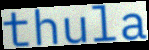
thula